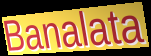
Banalata